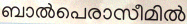
ബാൽപെരാസീമിൽ